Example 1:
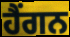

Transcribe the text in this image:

ਹੈਂਗਨ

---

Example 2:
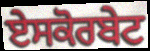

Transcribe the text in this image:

ਏਸਕੋਰਬੇਟ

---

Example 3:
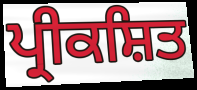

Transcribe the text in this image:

ਪ੍ਰੀਕਸ਼ਿਤ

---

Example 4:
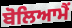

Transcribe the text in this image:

ਬੋਲਿਆਮੈਂ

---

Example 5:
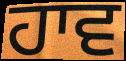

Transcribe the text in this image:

ਹਾਵ